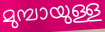
മുമ്പായുള്ള